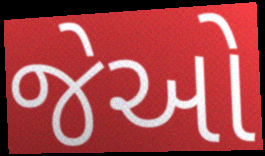
જેઓ